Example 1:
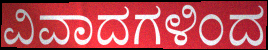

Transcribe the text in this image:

ವಿವಾದಗಳಿಂದ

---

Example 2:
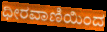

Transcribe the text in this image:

ಧೀರವಾಣಿಯಿಂದ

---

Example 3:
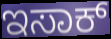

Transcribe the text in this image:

ಇಸಾಕ್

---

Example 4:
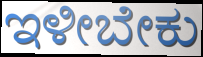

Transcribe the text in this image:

ಇಳೀಬೇಕು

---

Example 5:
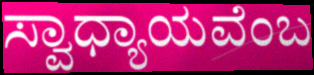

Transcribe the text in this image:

ಸ್ವಾಧ್ಯಾಯವೆಂಬ